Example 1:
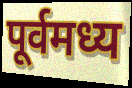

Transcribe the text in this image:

पूर्वमध्य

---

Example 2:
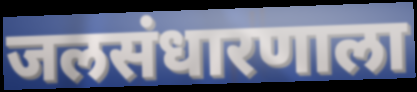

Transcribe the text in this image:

जलसंधारणाला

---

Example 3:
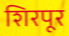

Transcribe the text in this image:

शिरपूर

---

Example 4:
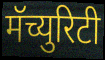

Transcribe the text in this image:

मॅच्युरिटी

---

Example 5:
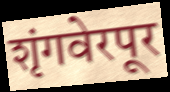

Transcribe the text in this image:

शृंगवेरपूर